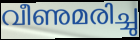
വീണുമരിച്ചു